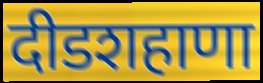
दीडशहाणा